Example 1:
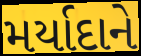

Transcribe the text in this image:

મર્યાદાને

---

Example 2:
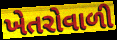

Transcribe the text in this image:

ખેતરોવાળી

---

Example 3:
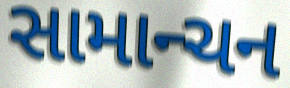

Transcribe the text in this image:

સામાન્ચન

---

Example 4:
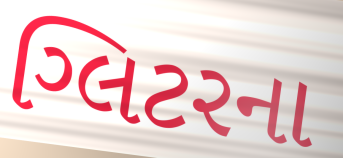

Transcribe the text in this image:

ગ્લિટરના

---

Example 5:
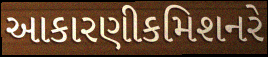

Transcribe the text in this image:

આકારણીકમિશનરે